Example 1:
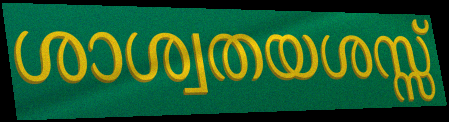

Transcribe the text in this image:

ശാശ്വതയശസ്സ്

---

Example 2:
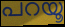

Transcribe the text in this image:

പറയൂ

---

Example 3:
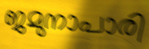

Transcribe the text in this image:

ജമുനാപാരി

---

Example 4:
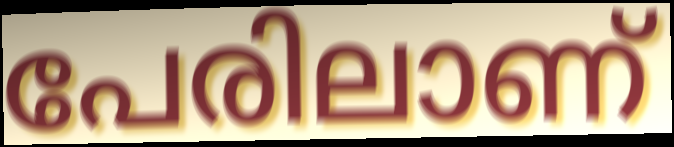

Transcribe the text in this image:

പേരിലാണ്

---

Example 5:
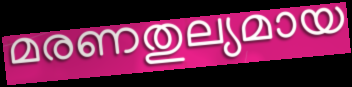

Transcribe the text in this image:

മരണതുല്യമായ